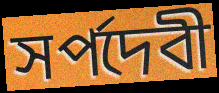
সর্পদেবী